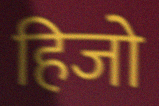
हिजो